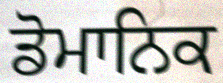
ਡੋਮਾਨਿਕ